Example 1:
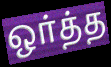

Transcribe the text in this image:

ஒர்த்த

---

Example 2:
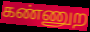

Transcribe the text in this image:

கண்ணுற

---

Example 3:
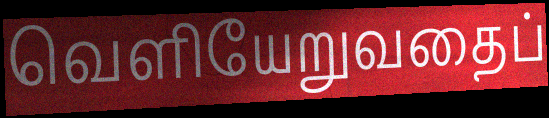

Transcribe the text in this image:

வெளியேறுவதைப்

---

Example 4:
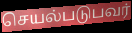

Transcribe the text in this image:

செயல்படுபவர்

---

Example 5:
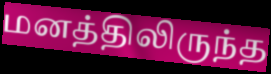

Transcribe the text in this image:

மனத்திலிருந்த